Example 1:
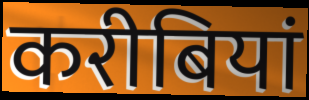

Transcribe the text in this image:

करीबियां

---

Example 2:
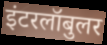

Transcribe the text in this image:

इंटरलॉबुलर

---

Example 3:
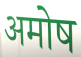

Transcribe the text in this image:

अमोष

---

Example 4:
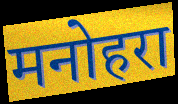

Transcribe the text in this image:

मनोहरा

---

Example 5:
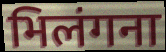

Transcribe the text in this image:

भिलंगना